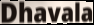
Dhavala